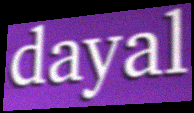
dayal